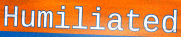
Humiliated